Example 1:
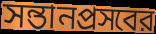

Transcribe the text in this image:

সন্তানপ্রসবের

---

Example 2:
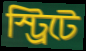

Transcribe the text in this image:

স্ট্রিটে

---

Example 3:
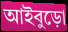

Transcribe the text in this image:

আইবুড়ো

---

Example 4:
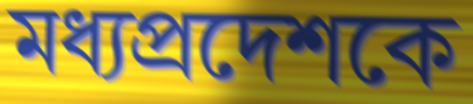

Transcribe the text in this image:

মধ্যপ্রদেশকে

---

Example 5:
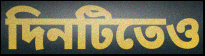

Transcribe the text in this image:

দিনটিতেও